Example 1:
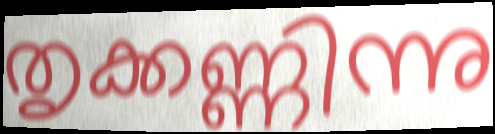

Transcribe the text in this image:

തൃക്കണ്ണിന്നു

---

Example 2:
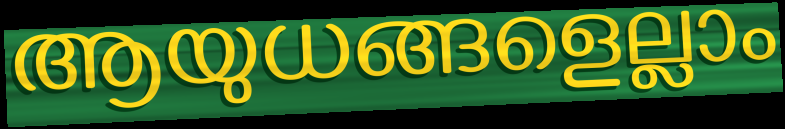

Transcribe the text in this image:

ആയുധങ്ങളെല്ലാം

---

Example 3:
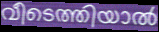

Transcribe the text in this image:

വീടെത്തിയാൽ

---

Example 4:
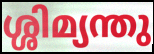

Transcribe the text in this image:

ശ്ശിമ്യന്തു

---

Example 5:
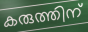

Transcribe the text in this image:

കരുത്തിന്